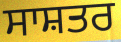
ਸਾਸ਼ਤਰ